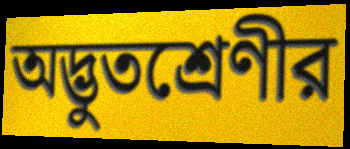
অদ্ভুতশ্রেণীর